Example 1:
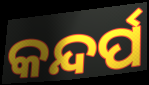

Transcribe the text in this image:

କନ୍ଦର୍ପ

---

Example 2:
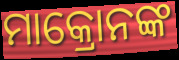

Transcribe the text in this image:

ମାକ୍ରୋନଙ୍କ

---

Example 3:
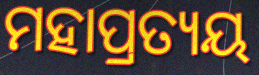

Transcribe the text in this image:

ମହାପ୍ରତ୍ୟୟ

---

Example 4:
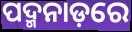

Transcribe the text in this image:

ପଦ୍ମନାଡ଼ରେ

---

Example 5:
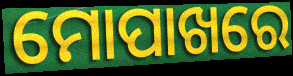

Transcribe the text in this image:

ମୋପାଖରେ